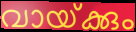
വായ്‌ക്കും